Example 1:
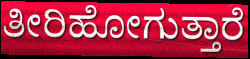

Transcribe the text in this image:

ತೀರಿಹೋಗುತ್ತಾರೆ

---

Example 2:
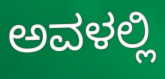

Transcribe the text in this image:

ಅವಳಲ್ಲಿ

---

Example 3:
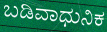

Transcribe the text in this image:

ಬಡಿವಾಧುನಿಕ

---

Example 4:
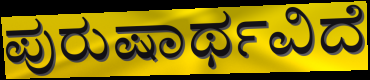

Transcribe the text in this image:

ಪುರುಷಾರ್ಥವಿದೆ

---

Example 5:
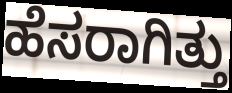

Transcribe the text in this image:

ಹೆಸರಾಗಿತ್ತು